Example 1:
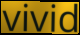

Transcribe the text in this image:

vivid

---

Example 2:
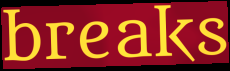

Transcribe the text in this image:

breaks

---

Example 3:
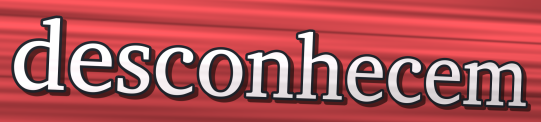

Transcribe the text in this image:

desconhecem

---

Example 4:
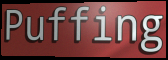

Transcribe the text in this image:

Puffing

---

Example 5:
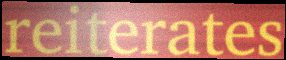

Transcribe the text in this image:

reiterates